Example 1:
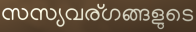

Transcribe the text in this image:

സസ്യവര്ഗങ്ങളുടെ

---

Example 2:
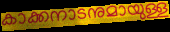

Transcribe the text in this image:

കാക്കനാടനുമായുള്ള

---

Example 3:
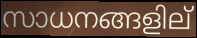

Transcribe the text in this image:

സാധനങ്ങളില്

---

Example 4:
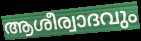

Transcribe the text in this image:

ആശീര്വാദവും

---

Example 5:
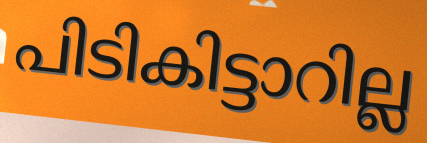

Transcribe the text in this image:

പിടികിട്ടാറില്ല